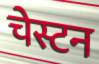
चेस्टन